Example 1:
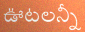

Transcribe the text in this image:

ఊటలన్నీ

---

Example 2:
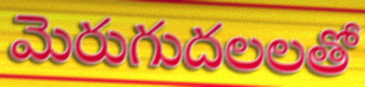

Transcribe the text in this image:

మెరుగుదలలతో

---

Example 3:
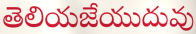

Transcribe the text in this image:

తెలియజేయుదువు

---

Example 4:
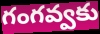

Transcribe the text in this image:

గంగవ్వకు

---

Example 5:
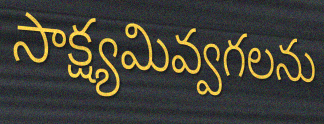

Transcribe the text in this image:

సాక్ష్యమివ్వగలను